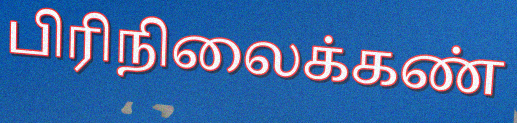
பிரிநிலைக்கண்